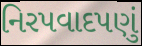
નિરપવાદપણું